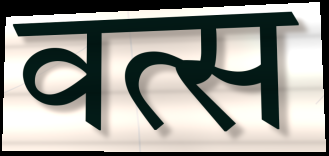
वत्स